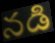
నడి